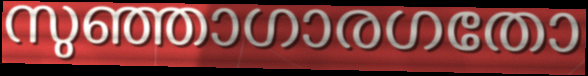
സുഞ്ഞാഗാരഗതോ